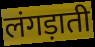
लंगड़ाती